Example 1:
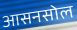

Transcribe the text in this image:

आसनसोल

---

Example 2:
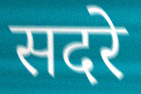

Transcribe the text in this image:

सदरे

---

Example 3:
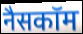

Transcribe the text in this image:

नैसकॉम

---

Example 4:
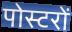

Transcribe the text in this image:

पोस्टरों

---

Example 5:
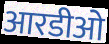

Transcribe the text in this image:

आरडीओ